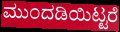
ಮುಂದಡಿಯಿಟ್ಟರೆ